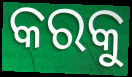
କରକୁ